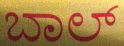
ಬಾಲ್